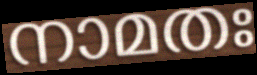
നാമതഃ